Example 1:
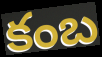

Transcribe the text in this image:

కంబ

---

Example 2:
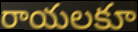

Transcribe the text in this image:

రాయలకూ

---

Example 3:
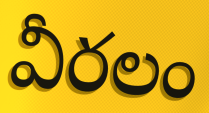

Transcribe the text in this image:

వీరలం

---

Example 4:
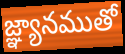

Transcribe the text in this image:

జ్ఞ్యానముతో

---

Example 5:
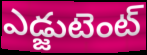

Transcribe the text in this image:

ఎడ్జుటెంట్